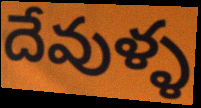
దేవుళ్ళ